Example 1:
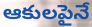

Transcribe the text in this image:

ఆకులపైనే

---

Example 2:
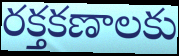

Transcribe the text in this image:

రక్తకణాలకు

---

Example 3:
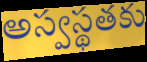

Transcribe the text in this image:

అస్వస్థతకు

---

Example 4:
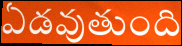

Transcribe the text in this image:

ఏడవుతుంది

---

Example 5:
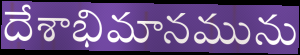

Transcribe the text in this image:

దేశాభిమానమును